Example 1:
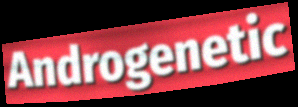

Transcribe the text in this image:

Androgenetic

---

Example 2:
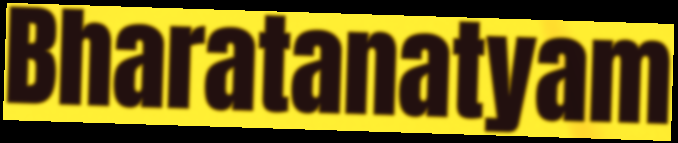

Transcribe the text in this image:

Bharatanatyam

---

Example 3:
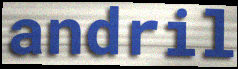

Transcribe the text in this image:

andril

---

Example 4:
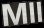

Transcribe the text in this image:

MII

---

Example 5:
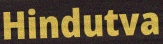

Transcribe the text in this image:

Hindutva